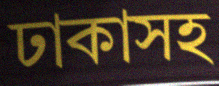
ঢাকাসহ